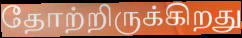
தோற்றிருக்கிறது